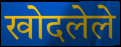
खोदलेले